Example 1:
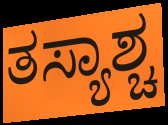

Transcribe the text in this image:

ತಸ್ಯಾಶ್ಚ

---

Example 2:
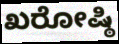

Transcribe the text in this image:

ಖರೋಷ್ಠಿ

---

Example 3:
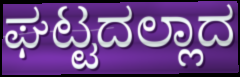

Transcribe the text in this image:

ಘಟ್ಟದಲ್ಲಾದ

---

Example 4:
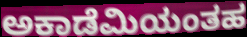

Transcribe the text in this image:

ಅಕಾಡೆಮಿಯಂತಹ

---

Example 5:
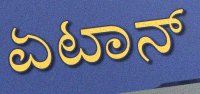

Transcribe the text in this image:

ಏಟಾನ್